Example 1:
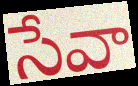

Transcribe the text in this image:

సేవా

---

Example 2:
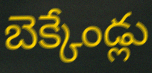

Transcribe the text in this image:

బెక్కేండ్లు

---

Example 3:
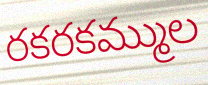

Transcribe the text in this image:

రకరకమ్ముల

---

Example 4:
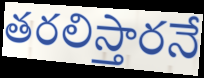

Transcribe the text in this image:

తరలిస్తారనే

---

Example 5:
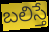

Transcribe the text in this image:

బలిస్తే